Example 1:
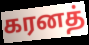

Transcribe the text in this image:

கரனத்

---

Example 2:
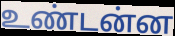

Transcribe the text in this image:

உண்டன்ன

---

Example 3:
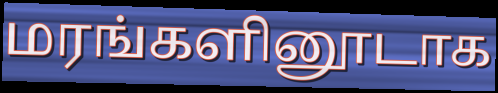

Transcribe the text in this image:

மரங்களினூடாக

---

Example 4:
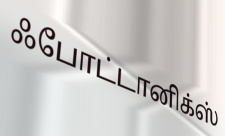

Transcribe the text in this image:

ஃபோட்டானிக்ஸ்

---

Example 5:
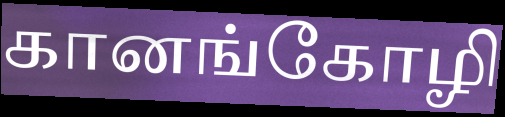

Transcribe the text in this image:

கானங்கோழி